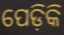
ପେଡ଼ିକି